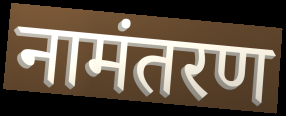
नामंतरण